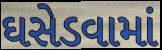
ઘસેડવામાં